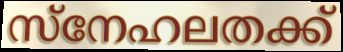
സ്നേഹലതക്ക്